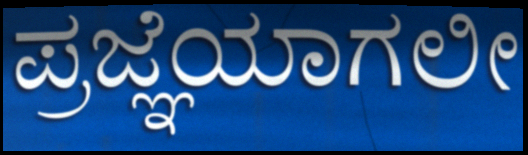
ಪ್ರಜ್ಞೆಯಾಗಲೀ